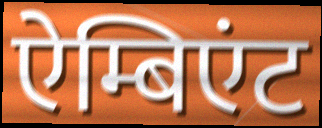
ऐम्बिएंट